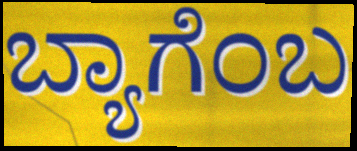
ಬ್ಯಾಗೆಂಬ